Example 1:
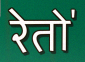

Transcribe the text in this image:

रेतो॑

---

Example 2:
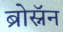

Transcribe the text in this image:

ब्रोस्नॅन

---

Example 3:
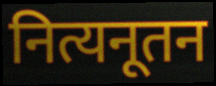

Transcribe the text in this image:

नित्यनूतन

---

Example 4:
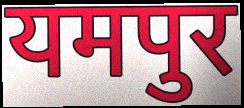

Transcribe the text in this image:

यमपुर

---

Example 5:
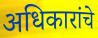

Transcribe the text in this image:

अधिकारांचे